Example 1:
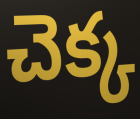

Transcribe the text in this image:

చెక్క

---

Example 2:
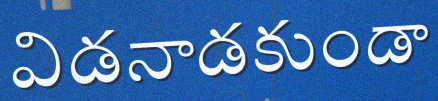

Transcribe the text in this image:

విడనాడకుండా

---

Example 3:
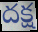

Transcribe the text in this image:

దక్ష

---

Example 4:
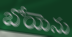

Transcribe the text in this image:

బోయెను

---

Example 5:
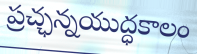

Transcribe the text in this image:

ప్రచ్ఛన్నయుద్ధకాలం